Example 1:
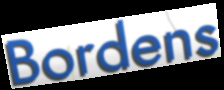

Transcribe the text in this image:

Bordens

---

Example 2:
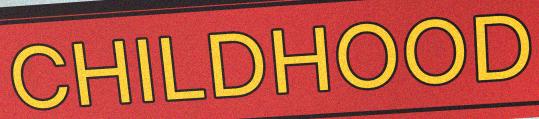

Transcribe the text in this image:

CHILDHOOD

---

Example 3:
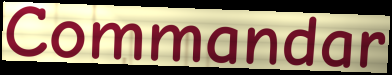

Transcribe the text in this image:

Commandar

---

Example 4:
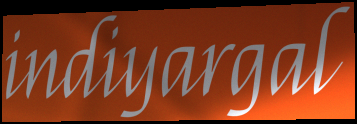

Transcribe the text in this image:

indiyargal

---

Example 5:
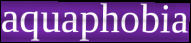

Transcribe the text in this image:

aquaphobia